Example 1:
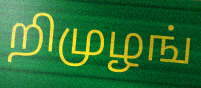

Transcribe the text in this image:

றிமுழங்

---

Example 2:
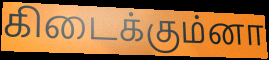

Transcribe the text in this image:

கிடைக்கும்னா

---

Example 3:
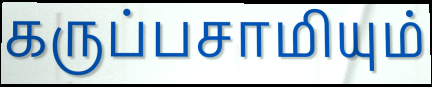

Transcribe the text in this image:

கருப்பசாமியும்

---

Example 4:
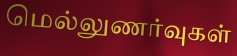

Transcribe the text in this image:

மெல்லுணர்வுகள்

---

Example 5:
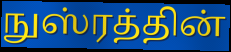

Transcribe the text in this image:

நுஸ்ரத்தின்